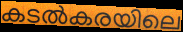
കടൽകരയിലെ